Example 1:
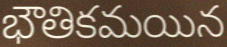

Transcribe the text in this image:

భౌతికమయిన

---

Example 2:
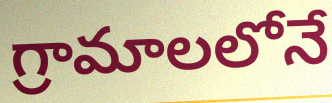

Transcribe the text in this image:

గ్రామాలలోనే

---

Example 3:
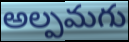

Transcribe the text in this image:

అల్పమగు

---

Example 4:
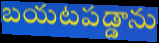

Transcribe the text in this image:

బయటపడ్డాను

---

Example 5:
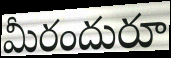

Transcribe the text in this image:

మీరందురూ